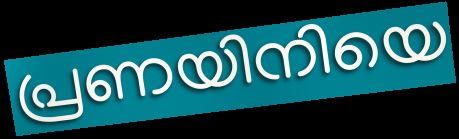
പ്രണയിനിയെ